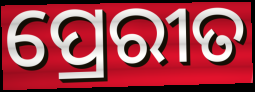
ପ୍ରେରୀତ